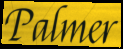
Palmer